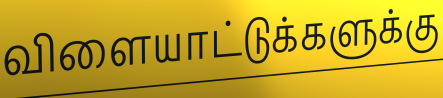
விளையாட்டுக்களுக்கு